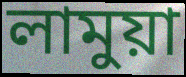
লামুয়া